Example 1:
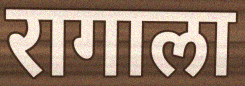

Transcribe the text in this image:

रागाला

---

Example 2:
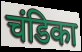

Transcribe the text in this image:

चंडिका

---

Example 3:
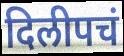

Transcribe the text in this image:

दिलीपचं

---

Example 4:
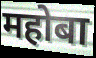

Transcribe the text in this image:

महोबा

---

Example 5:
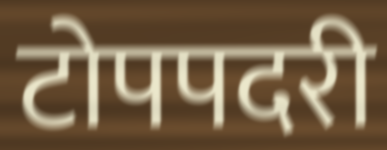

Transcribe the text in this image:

टोपपदरी